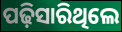
ପଢ଼ିସାରିଥିଲେ